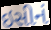
ઇસીનં